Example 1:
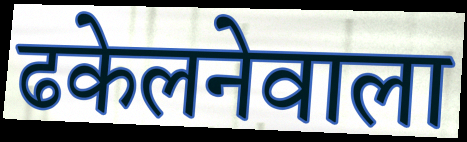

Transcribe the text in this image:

ढकेलनेवाला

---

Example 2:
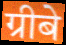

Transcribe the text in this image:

ग्रीबे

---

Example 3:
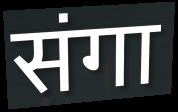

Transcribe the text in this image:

संगा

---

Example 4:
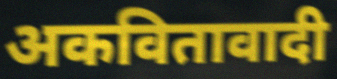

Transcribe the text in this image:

अकवितावादी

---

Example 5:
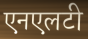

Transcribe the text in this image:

एनएलटी